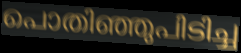
പൊതിഞ്ഞുപിടിച്ച